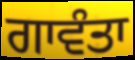
ਗਾਵੰਤਾ